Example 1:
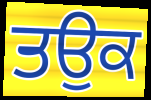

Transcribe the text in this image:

ਤਉਕ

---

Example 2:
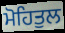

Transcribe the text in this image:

ਮੋਹਿਤੁਲ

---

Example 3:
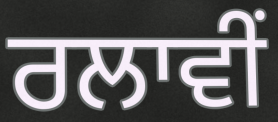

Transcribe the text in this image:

ਰਲਾਵੀਂ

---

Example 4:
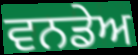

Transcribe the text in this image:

ਵਨਡੇਅ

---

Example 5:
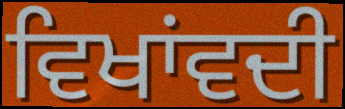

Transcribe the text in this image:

ਵਿਖਾਂਵਦੀ